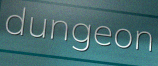
dungeon